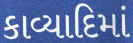
કાવ્યાદિમાં